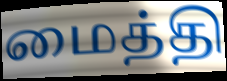
மைத்தி